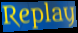
Replay